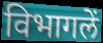
विभागलें